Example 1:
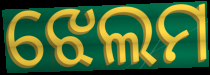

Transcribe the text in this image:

ଝେଲମ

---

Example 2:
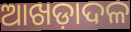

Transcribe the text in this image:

ଆଖଡ଼ାଦଳ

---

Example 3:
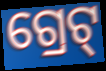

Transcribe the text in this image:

ଗ୍ରେଟ୍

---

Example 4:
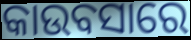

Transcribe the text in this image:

କାଉବସାରେ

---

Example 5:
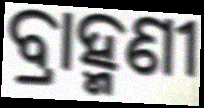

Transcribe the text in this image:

ବ୍ରାହ୍ମଣୀ